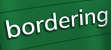
bordering